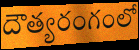
దౌత్యరంగంలో